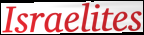
Israelites